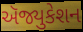
ઍજ્યુકેશન